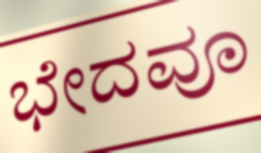
ಭೇದವೂ